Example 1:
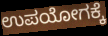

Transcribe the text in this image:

ಉಪಯೋಗಕ್ಕೆ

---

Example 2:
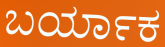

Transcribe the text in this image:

ಬರ್ಯಾಕ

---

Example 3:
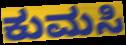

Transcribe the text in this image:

ಕುಮಸಿ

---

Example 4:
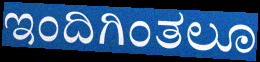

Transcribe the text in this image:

ಇಂದಿಗಿಂತಲೂ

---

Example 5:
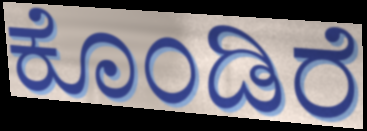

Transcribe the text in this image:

ಕೊಂಡಿರೆ